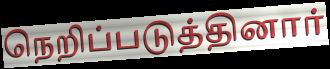
நெறிப்படுத்தினார்